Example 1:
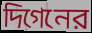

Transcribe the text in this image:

দিগেনের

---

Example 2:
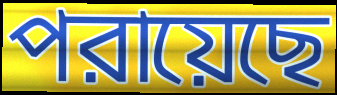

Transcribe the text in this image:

পরায়েছে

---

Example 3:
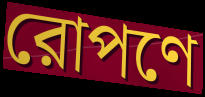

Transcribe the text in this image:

রোপণে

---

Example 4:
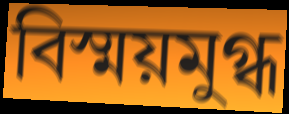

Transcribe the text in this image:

বিস্ময়মুগ্ধ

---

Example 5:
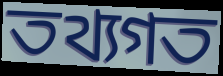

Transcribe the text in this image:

তথ্যগত